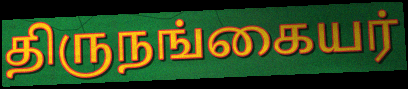
திருநங்கையர்